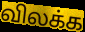
விலக்க